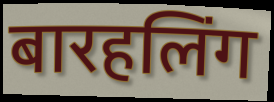
बारहलिंग